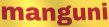
manguni